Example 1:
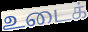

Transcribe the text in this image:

உடைக்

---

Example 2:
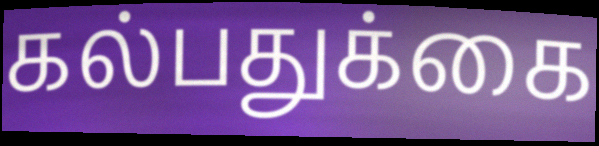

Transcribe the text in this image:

கல்பதுக்கை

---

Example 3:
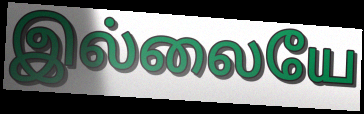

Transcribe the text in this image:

இல்லையே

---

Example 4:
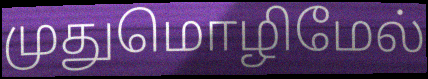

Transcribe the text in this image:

முதுமொழிமேல்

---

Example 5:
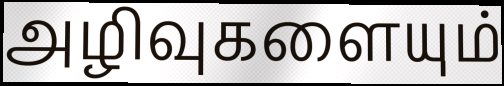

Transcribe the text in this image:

அழிவுகளையும்